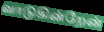
வாடுகின்றேன்